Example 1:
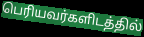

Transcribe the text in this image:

பெரியவர்களிடத்தில்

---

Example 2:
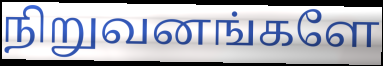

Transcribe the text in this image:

நிறுவனங்களே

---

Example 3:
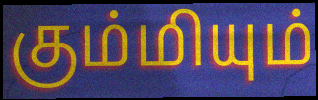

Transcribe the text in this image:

கும்மியும்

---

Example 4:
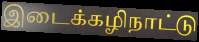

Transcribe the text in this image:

இடைக்கழிநாட்டு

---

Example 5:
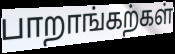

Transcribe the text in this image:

பாறாங்கற்கள்